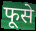
फूसे